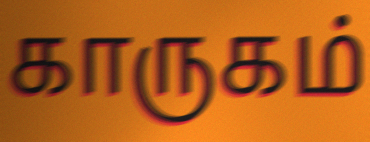
காருகம்